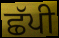
ਛੱਪੀ